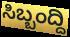
ಸಿಬ್ಬಂದ್ದಿ